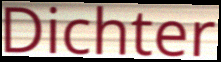
Dichter